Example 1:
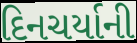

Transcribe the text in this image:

દિનચર્યાની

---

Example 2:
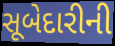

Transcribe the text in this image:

સૂબેદારીની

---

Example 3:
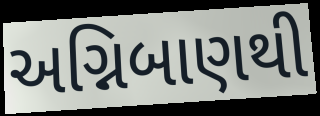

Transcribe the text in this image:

અગ્નિબાણથી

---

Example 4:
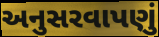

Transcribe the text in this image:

અનુસરવાપણું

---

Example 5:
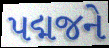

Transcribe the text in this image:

પદ્મજને